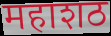
महाशठ